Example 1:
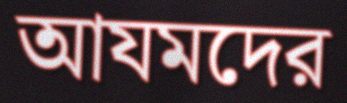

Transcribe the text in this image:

আযমদের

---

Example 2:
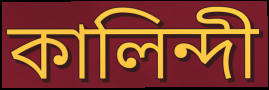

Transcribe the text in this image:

কালিন্দী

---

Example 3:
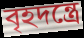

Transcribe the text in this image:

বৃহদন্ত্রে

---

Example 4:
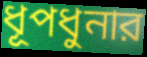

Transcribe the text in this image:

ধূপধুনার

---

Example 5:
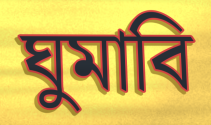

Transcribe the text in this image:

ঘুমাবি